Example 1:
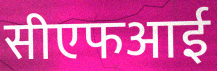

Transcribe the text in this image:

सीएफआई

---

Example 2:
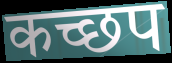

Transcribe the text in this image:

कच्छप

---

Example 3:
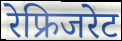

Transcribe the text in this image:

रेफ्रिजरेट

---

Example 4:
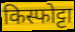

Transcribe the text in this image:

किस्फोट्टा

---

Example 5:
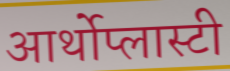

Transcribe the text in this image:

आर्थोप्लास्टी